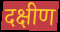
दक्षीण